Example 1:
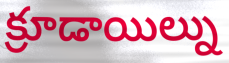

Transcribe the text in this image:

క్రూడాయిల్ను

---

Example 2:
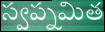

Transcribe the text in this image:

స్వప్నమిత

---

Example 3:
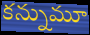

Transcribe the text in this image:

కన్నుమూ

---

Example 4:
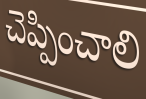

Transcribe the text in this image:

చెప్పించాలి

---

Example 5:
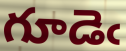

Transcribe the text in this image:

గూడెఁ